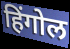
हिंगोल